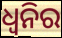
ଧ୍ବନିର